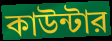
কাউন্টার